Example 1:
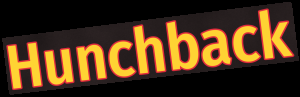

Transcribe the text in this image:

Hunchback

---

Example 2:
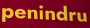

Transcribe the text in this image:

penindru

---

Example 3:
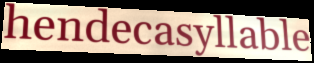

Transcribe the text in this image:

hendecasyllable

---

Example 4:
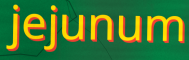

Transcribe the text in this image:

jejunum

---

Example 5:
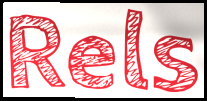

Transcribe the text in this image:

Rels